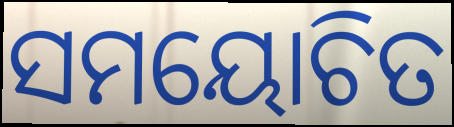
ସମୟୋଚିତ